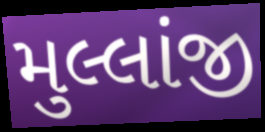
મુલ્લાંજી